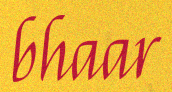
bhaar